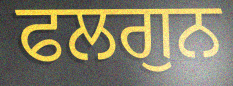
ਫਲਗੁਨ